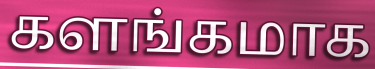
களங்கமாக